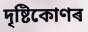
দৃষ্টিকোণৰ